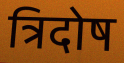
त्रिदोष